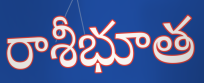
రాశీభూత